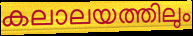
കലാലയത്തിലും